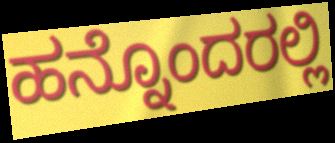
ಹನ್ನೊಂದರಲ್ಲಿ